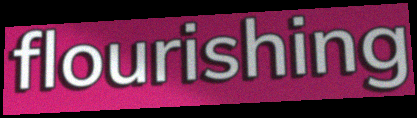
flourishing